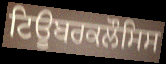
ਟਿਊਬਰਕਲੌਸਿਸ